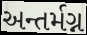
અન્તર્મગ્ન